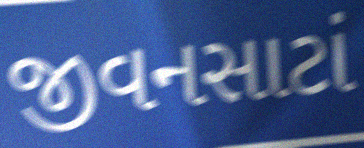
જીવનસાટાં